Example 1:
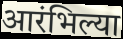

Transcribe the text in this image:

आरंभिल्या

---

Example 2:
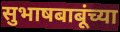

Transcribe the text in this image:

सुभाषबाबूंच्या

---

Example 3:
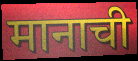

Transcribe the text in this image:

मानाची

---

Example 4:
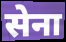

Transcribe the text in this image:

सेना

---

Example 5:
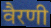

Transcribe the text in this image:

वैरणी